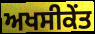
ਅਖਸੀਕੇਂਤ